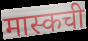
मास्कची